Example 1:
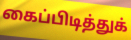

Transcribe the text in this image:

கைப்பிடித்துக்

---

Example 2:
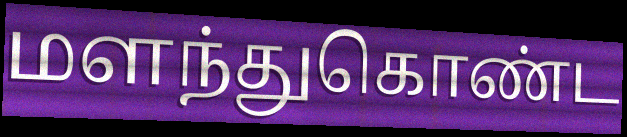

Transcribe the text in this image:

மளந்துகொண்ட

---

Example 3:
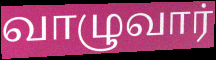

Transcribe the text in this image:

வாழுவார்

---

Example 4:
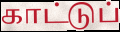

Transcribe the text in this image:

காட்டுப்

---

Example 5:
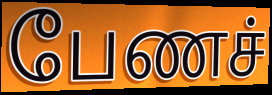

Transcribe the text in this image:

பேணச்